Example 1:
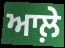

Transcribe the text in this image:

ਆਲ਼ੇ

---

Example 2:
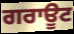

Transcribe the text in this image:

ਗਰਾਊਟ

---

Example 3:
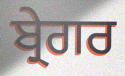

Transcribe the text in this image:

ਬ੍ਰੇਗਰ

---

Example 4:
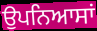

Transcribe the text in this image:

ਉਪਨਿਆਸਾਂ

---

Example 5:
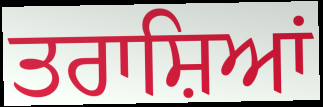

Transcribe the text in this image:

ਤਰਾਸ਼ਿਆਂ